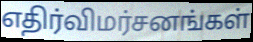
எதிர்விமர்சனங்கள்